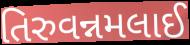
તિરુવન્નમલાઈ